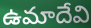
ఉమాదేవి